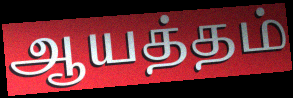
ஆயத்தம்